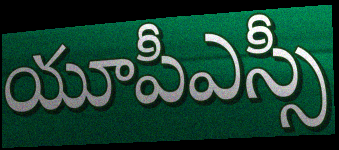
యూపీఎస్సీ